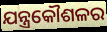
ଯନ୍ତ୍ରକୌଶଳର